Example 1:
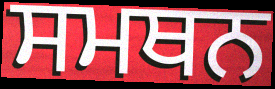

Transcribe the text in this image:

ਸਮਥਨ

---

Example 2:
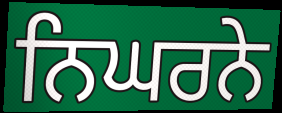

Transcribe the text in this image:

ਨਿਘਰਨੇ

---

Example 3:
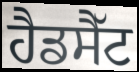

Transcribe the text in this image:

ਹੈਡਸੈੱਟ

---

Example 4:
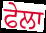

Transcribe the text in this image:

ਫੇਲਾ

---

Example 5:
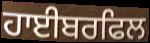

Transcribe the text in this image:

ਹਾਈਬਰਫਿਲ